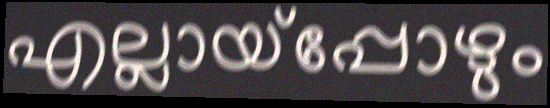
എല്ലായ്പ്പോഴും